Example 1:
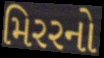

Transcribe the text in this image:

મિરરનો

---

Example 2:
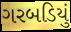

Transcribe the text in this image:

ગરબડિયું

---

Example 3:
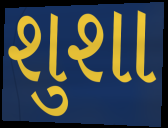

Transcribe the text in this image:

શુશા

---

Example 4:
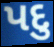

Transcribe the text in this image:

પદુ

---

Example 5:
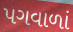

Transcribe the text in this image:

પગવાળાં